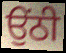
ਉਂਠੀ